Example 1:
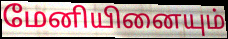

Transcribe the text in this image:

மேனியினையும்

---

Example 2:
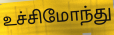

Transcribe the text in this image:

உச்சிமோந்து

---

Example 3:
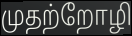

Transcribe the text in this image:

முதற்றோழி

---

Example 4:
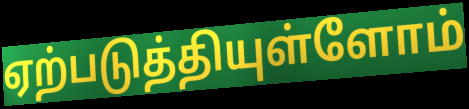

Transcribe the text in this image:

ஏற்படுத்தியுள்ளோம்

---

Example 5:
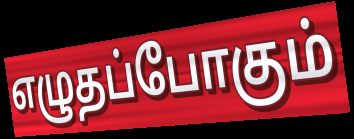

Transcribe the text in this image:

எழுதப்போகும்